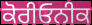
ਕੋਰੀਓਨੀਕ